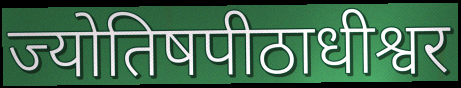
ज्योतिषपीठाधीश्वर